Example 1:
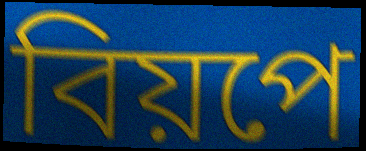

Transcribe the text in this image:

বিয়পে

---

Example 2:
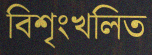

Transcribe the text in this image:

বিশৃংখলিত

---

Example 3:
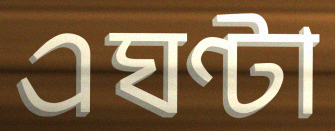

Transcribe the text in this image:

এঘণ্টা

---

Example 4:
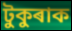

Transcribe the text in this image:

টুকুৰাক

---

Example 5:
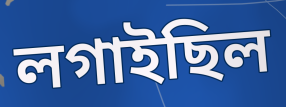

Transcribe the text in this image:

লগাইছিল